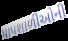
પાપશાળીઓની